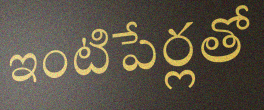
ఇంటిపేర్లతో